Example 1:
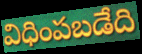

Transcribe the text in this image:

విధింపబడేది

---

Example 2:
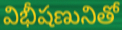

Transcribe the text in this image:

విభీషణునితో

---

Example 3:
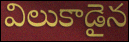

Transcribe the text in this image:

విలుకాడైన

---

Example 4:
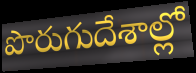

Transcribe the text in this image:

పొరుగుదేశాల్లో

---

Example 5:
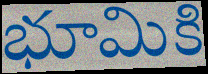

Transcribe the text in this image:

భూమికి